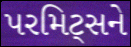
પરમિટ્સને